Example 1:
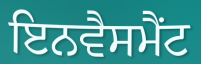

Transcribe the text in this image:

ਇਨਵੈਸਮੈਂਟ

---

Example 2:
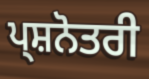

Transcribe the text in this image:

ਪ੍ਸ਼ਨੋਤਰੀ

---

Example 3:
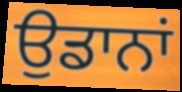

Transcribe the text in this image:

ਉਡਾਨਾਂ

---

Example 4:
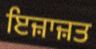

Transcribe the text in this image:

ਇਜ਼ਾਜ਼ਤ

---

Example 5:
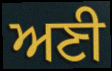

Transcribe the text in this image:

ਅਣੀ